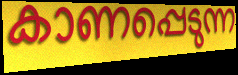
കാണപ്പെടുന്ന